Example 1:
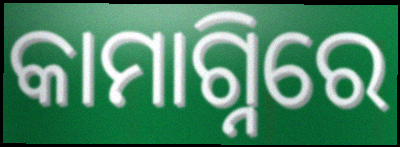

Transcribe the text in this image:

କାମାଗ୍ନିରେ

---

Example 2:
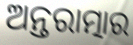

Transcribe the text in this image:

ଅନ୍ତରାତ୍ମାର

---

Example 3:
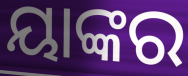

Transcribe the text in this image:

ୟାଙ୍କର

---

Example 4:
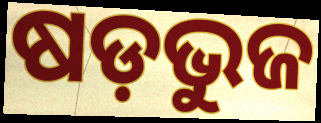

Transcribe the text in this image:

ଷଡ଼ଭୁଜ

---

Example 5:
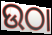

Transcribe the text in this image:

ଉଠା